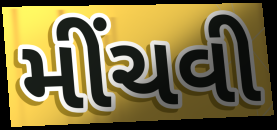
મીંચવી